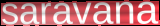
saravana